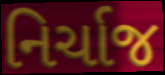
નિર્ચાજ